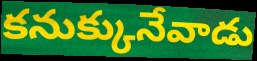
కనుక్కునేవాడు